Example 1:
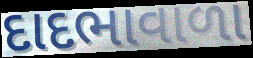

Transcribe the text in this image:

દાદભાવાળા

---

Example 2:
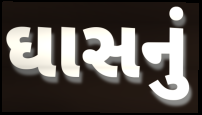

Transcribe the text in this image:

ઘાસનું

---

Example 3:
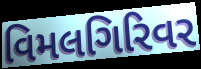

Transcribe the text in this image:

વિમલગિરિવર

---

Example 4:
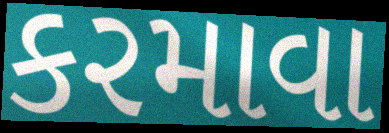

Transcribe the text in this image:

કરમાવા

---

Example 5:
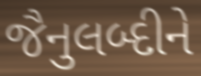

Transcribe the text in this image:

જૈનુલબ્દીને